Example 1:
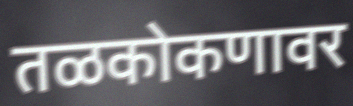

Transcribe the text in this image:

तळकोकणावर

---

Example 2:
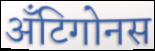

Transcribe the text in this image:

अँटिगोनस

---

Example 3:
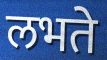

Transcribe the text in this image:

लभते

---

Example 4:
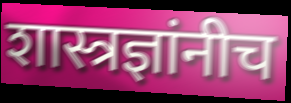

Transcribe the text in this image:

शास्त्रज्ञांनीच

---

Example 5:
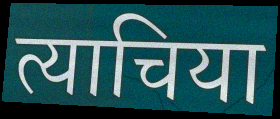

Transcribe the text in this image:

त्याचिया